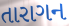
તારાગન